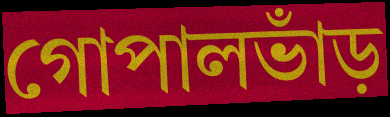
গোপালভাঁড়